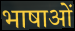
भाषाओें